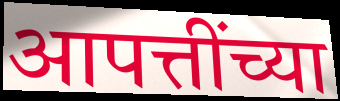
आपत्तींच्या